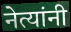
नेत्यांनी